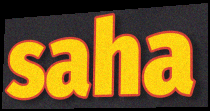
saha